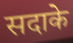
सदाके